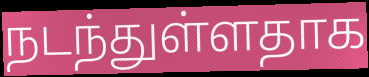
நடந்துள்ளதாக